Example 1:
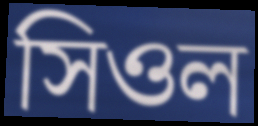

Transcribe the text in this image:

সিওল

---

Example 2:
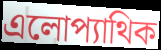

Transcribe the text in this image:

এলোপ্যাথিক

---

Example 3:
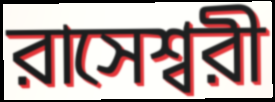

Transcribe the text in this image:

রাসেশ্বরী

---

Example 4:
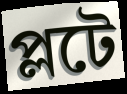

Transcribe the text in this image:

প্লটে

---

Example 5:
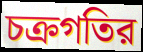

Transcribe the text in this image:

চক্রগতির